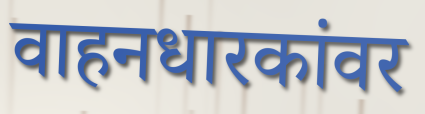
वाहनधारकांवर